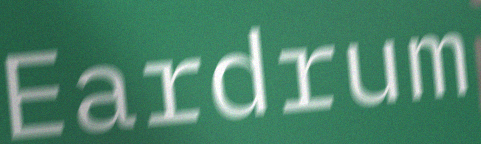
Eardrum